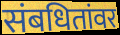
संबधितांवर